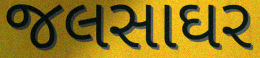
જલસાઘર